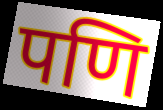
पणि